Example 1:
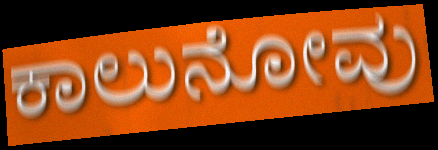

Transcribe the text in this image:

ಕಾಲುನೋವು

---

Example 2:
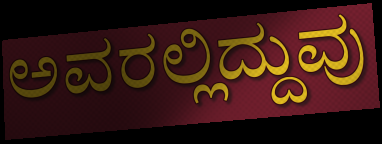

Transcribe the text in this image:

ಅವರಲ್ಲಿದ್ದುವು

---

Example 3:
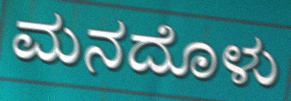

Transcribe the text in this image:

ಮನದೊಳು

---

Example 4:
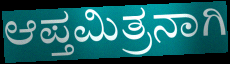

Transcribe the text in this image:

ಆಪ್ತಮಿತ್ರನಾಗಿ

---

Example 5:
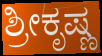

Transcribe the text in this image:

ಶ್ರೀಕೃಷ್ಣ